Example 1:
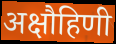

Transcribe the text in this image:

अक्षौहिणी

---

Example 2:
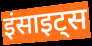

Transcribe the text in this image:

इंसाइट्स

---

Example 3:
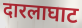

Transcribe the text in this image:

दारलाघाट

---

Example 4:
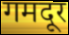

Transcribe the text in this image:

गमदूर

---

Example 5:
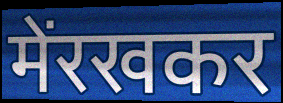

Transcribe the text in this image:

मेंरखकर